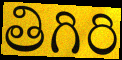
తిగిరి